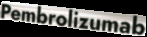
Pembrolizumab